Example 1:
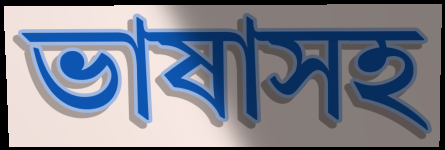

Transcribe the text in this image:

ভাষাসহ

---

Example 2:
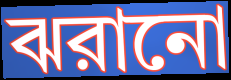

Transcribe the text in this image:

ঝরানো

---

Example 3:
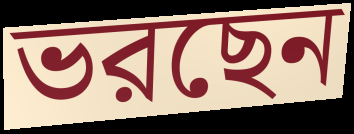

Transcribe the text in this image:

ভরছেন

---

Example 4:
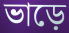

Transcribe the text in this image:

ভাড়ে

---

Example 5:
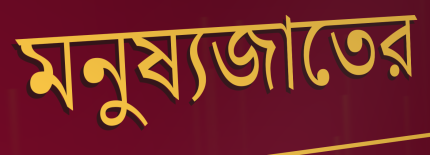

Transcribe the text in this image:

মনুষ্যজাতের